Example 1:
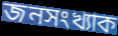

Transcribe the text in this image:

জনসংখ্যাক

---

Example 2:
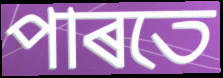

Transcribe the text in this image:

পাৰতে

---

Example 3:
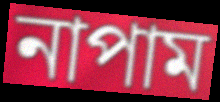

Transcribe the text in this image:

নাপাম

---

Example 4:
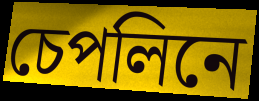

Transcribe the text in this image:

চেপলিনে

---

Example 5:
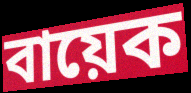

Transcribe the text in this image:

বায়েক